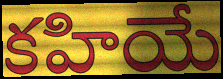
కహియే